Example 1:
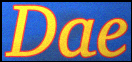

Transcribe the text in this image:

Dae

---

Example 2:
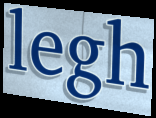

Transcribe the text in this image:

legh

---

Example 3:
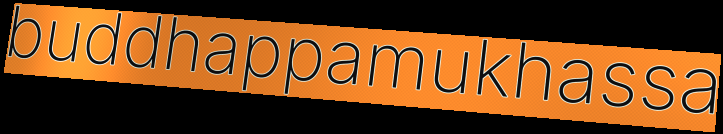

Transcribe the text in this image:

buddhappamukhassa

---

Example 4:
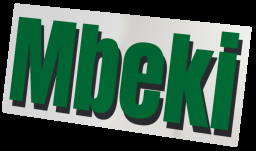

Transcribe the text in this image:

Mbeki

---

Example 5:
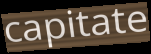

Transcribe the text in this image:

capitate